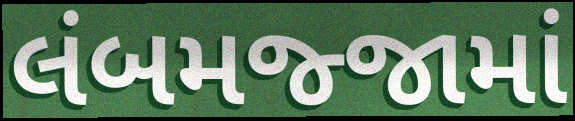
લંબમજ્જામાં